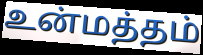
உன்மத்தம்